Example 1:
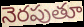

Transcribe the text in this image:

నెరపుతూ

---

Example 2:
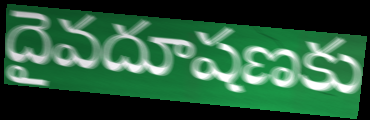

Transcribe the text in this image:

దైవదూషణకు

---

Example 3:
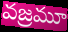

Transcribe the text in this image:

వజ్రమూ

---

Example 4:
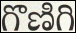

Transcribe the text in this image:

గొణిగి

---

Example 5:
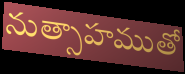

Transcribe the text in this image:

నుత్సాహముతో